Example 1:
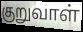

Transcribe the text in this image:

குறுவாள்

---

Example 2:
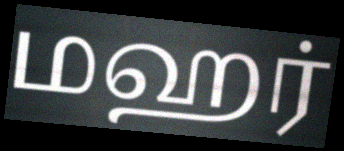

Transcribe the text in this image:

மஹர்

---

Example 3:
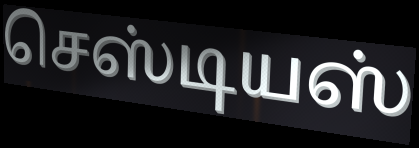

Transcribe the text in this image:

செஸ்டியஸ்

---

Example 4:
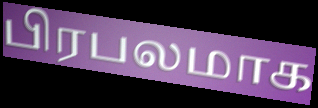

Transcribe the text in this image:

பிரபலமாக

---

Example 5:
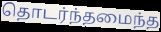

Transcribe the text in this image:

தொடர்ந்தமைந்த